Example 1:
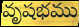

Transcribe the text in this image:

వృషభము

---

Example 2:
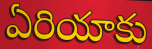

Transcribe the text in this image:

ఏరియాకు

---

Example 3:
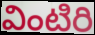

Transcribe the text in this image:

వింటిరి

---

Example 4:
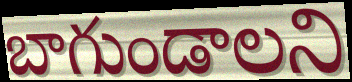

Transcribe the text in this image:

బాగుండాలని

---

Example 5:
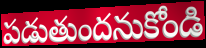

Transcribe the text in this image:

పడుతుందనుకోండి